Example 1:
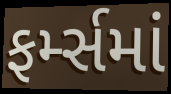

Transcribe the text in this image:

ફર્મ્સમાં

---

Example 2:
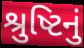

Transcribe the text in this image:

શ્રુષ્ટિનું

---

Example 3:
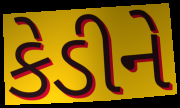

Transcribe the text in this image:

કેડીને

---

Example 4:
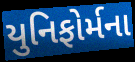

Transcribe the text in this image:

યુનિફોર્મના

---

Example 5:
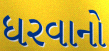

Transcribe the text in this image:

ધરવાનો